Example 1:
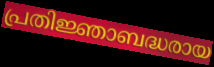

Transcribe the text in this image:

പ്രതിജ്ഞാബദ്ധരായ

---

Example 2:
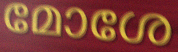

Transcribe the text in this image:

മോശേ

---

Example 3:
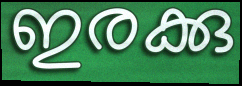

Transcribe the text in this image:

ഇരക്കു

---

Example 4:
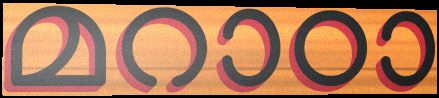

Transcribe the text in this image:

മറാഠാ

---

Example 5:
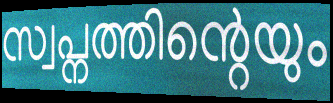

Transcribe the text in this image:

സ്വപ്നത്തിന്റെയും